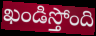
ఖండిస్తోంది